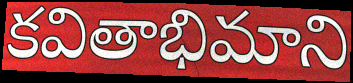
కవితాభిమాని